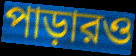
পাড়ারও